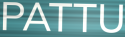
PATTU